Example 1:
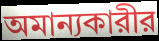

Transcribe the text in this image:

অমান্যকারীর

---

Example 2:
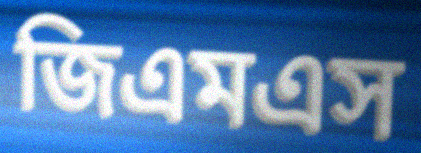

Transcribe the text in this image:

জিএমএস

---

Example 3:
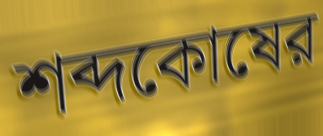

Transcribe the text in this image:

শব্দকোষের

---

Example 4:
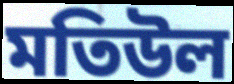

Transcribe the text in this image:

মতিউল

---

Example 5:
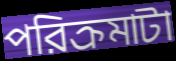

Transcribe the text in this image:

পরিক্রমাটা